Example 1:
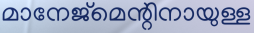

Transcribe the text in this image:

മാനേജ്മെന്റിനായുള്ള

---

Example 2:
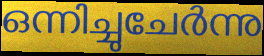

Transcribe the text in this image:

ഒന്നിച്ചുചേർന്നു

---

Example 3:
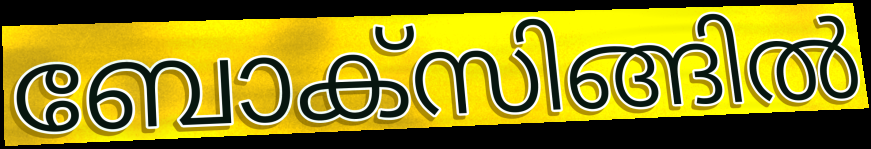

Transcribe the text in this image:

ബോക്സിങ്ങിൽ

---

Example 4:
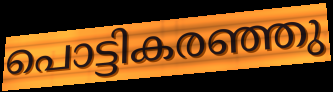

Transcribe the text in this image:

പൊട്ടികരഞ്ഞു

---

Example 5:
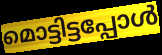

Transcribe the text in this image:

മൊട്ടിട്ടപ്പോൾ